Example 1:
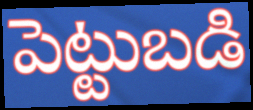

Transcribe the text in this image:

పెట్టుబడి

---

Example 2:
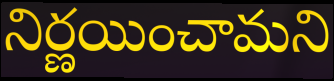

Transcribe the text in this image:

నిర్ణయించామని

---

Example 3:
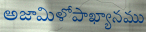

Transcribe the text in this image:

అజామిళోపాఖ్యానము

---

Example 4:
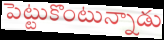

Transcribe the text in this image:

పెట్టుకొంటున్నాడు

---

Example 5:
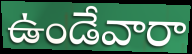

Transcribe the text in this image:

ఉండేవారా